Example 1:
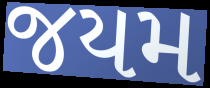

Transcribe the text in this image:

જયમ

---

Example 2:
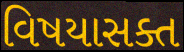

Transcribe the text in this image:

વિષયાસક્ત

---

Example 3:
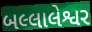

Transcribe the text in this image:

બલ્લાલેશ્વર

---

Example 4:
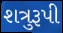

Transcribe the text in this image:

શત્રુરૂપી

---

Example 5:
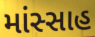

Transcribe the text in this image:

માંસ્સાહ